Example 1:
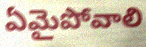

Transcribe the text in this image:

ఏమైపోవాలి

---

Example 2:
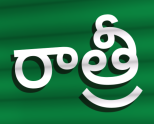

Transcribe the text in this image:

రాత్రీ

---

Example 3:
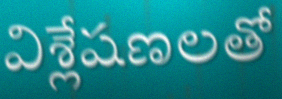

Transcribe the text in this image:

విశ్లేషణలతో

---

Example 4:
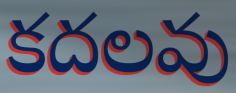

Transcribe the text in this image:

కదలవు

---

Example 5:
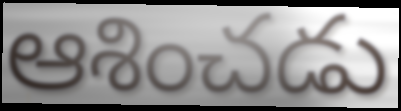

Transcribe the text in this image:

ఆశించడు